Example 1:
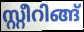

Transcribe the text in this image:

സ്റ്റീറിങ്ങ്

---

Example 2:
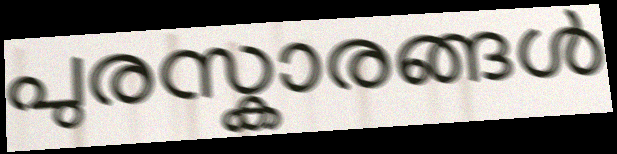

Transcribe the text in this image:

പുരസ്കാരങ്ങൾ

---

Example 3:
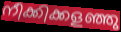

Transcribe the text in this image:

നീക്കിക്കളഞ്ഞു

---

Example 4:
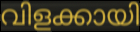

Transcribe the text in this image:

വിളക്കായി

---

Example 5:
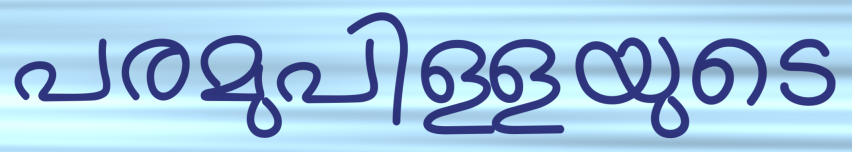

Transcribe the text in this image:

പരമുപിള്ളയുടെ